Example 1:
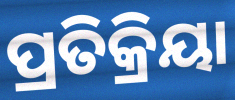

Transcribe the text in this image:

ପ୍ରତିକ୍ରିୟା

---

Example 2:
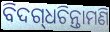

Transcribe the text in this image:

ବିଦଗ୍‌ଧଚିନ୍ତାମଣି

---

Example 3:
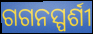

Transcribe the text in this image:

ଗଗନସ୍ପର୍ଶୀ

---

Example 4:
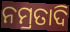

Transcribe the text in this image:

ନମ୍ରତାଦି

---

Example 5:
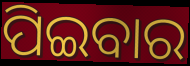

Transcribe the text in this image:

ପିଇବାର